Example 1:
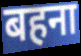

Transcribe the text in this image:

बहना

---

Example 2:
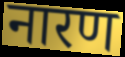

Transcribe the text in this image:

नारण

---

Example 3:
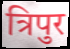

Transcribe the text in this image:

त्रिपुर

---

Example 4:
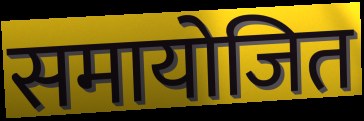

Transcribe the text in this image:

समायोजित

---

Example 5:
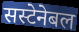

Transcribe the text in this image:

सस्टेनेबल